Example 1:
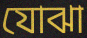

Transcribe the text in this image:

যোঝা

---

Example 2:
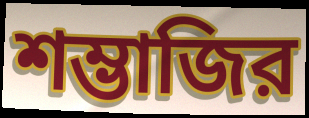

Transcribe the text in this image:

শম্ভাজির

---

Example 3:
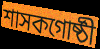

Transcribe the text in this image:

শাসকগোষ্ঠী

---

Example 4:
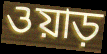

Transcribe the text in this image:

ওয়াড়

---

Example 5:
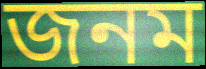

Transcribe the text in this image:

জনম